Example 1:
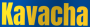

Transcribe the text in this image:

Kavacha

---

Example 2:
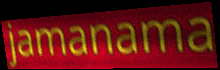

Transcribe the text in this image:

jamanama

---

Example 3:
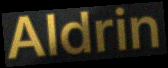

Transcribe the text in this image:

Aldrin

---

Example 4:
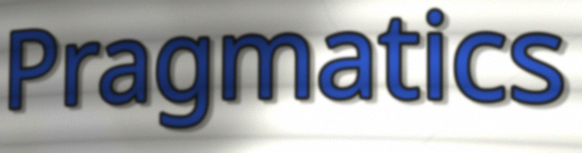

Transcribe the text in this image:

Pragmatics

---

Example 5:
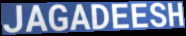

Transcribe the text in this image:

JAGADEESH